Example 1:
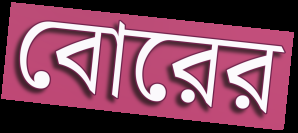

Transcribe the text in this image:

বোরের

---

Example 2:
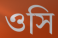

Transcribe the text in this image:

ওসি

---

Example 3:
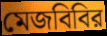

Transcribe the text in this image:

মেজবিবির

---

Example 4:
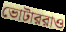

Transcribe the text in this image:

ভোটাররাও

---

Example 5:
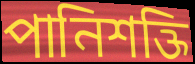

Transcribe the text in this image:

পানিশক্তি